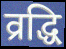
व्रद्धि